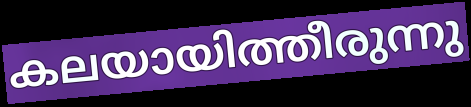
കലയായിത്തീരുന്നു